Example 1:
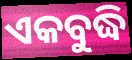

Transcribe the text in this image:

ଏକବୁଦ୍ଧି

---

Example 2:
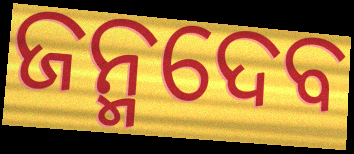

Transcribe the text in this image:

ଜନ୍ମଦେବ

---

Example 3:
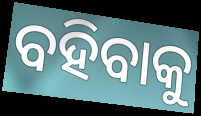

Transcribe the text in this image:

ବହିବାକୁ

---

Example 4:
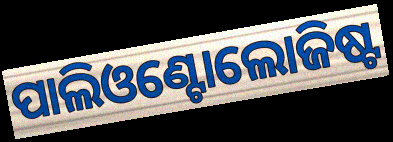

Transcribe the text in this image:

ପାଲିଓଣ୍ଟୋଲୋଜିଷ୍ଟ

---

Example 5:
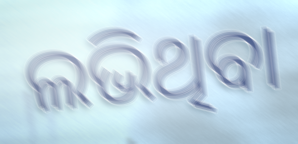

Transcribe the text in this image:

ଲଭିଥିବା